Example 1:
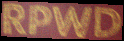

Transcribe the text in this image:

RPWD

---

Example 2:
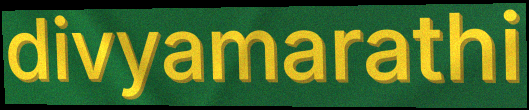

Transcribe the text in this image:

divyamarathi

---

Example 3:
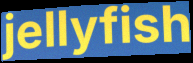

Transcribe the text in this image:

jellyfish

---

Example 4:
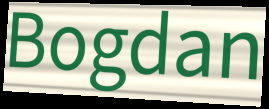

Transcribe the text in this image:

Bogdan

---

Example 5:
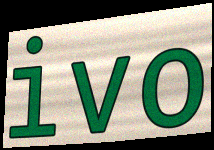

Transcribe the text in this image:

ivo